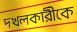
দখলকারীকে